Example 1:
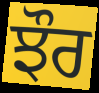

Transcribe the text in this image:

ਝੌਰ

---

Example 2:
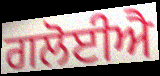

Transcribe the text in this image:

ਗਲੋਈਐ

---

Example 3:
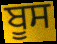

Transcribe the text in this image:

ਬੂਸ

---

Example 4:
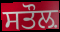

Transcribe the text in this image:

ਸਤੌਲ਼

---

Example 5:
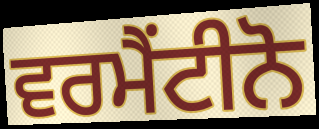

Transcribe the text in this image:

ਵਰਮੈਂਟੀਨੋ